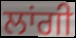
ਲਾਂਗੀ